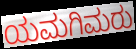
ಯಮಗಿಮರು